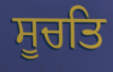
ਸੂਚਤਿ